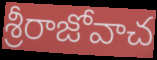
శ్రీరాజోవాచ